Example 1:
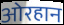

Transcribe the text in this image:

ओरहान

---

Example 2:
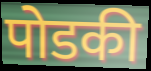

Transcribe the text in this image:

पोडकी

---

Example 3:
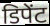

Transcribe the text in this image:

डिपेंट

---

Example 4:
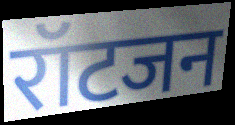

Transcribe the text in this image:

रॉटजन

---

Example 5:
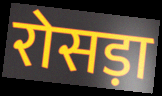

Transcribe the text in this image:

रोसड़ा